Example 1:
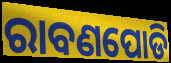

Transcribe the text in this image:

ରାବଣପୋଡି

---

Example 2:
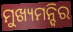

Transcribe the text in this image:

ମୁଖ୍ୟମନ୍ଦିର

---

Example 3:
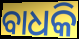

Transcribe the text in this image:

ବାଧକି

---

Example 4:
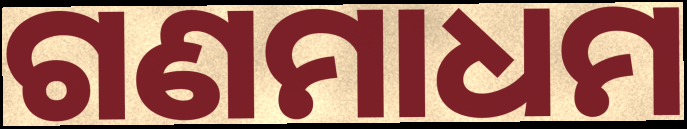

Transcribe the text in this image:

ଗଣମାଧମ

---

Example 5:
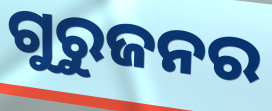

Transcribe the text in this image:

ଗୁରୁଜନର